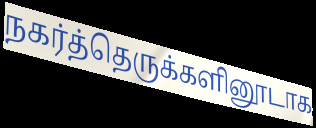
நகர்த்தெருக்களினூடாக